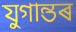
যুগান্তৰ